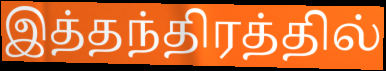
இத்தந்திரத்தில்